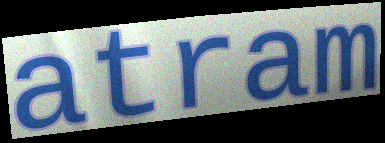
atram